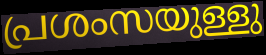
പ്രശംസയുള്ളു